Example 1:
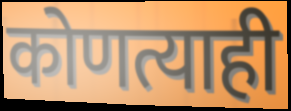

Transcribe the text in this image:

कोणत्याही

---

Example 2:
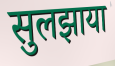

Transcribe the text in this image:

सुलझाया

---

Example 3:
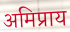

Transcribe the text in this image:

अमिप्राय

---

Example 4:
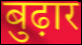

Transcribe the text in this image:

बुढ़ार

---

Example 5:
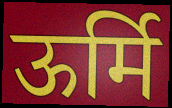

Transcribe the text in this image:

ऊर्मि